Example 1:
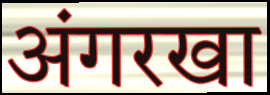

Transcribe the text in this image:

अंगरखा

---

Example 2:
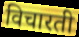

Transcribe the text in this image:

विचारती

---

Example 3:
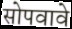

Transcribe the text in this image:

सोपवावे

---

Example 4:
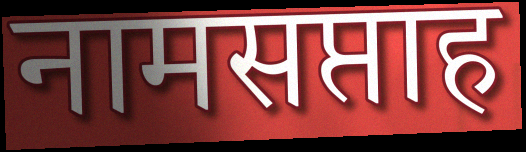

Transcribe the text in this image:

नामसप्ताह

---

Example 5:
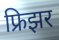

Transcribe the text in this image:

फ्रिझर